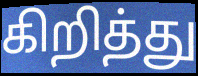
கிறித்து